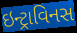
ઇન્ટ્રાવિનસ